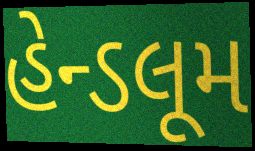
હેન્ડલૂમ